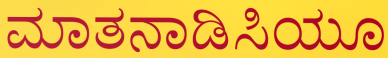
ಮಾತನಾಡಿಸಿಯೂ